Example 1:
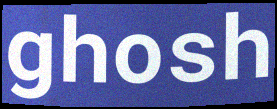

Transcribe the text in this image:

ghosh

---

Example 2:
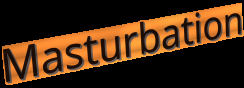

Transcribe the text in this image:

Masturbation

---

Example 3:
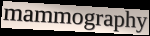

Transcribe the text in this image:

mammography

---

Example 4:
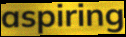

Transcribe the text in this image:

aspiring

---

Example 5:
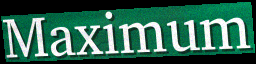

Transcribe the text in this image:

Maximum